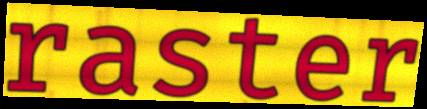
raster